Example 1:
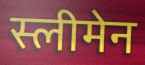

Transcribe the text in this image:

स्लीमेन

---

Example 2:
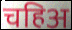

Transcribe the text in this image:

चहिअ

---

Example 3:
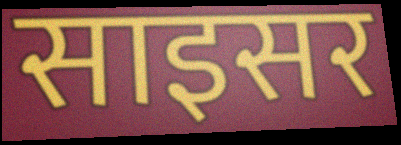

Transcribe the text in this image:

साइसर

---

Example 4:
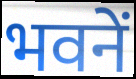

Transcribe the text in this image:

भवनें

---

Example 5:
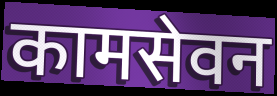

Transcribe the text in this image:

कामसेवन